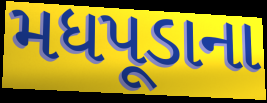
મધપૂડાના